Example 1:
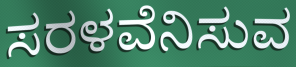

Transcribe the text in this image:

ಸರಳವೆನಿಸುವ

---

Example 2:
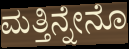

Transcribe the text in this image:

ಮತ್ತಿನ್ನೇನೊ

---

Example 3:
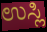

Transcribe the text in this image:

ಉಸ್ಲಿ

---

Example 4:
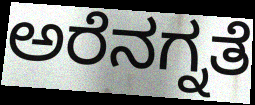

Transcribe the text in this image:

ಅರೆನಗ್ನತೆ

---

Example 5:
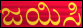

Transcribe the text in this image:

ಜಯಿಸಿ